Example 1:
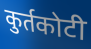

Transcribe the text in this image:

कुर्तकोटी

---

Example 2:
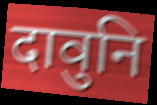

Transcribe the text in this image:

दावुनि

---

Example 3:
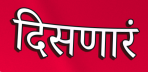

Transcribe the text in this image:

दिसणारं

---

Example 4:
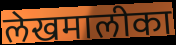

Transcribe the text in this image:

लेखमालीका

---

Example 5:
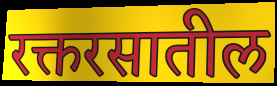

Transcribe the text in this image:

रक्तरसातील